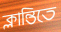
ক্লান্তিতে